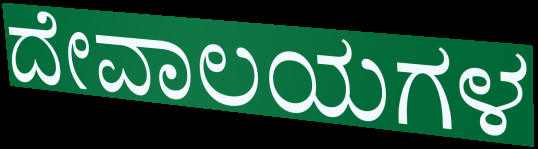
ದೇವಾಲಯಗಳ